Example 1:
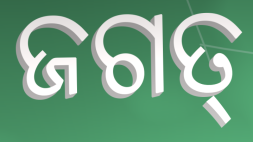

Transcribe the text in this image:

ଜଗତ୍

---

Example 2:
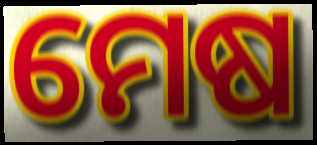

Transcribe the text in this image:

ମେଷ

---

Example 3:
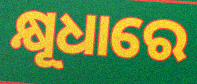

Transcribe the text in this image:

କ୍ଷୂଧାରେ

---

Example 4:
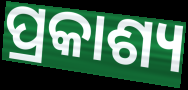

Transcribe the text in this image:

ପ୍ରକାଶ୍ୟ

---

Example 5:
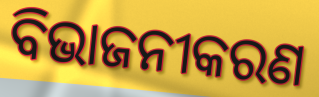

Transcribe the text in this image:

ବିଭାଜନୀକରଣ